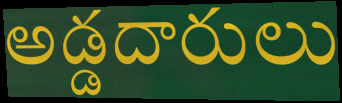
అడ్డదారులు